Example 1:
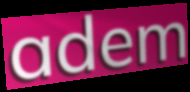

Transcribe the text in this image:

adem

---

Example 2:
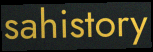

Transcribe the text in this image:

sahistory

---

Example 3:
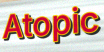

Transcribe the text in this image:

Atopic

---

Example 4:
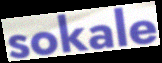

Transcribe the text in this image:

sokale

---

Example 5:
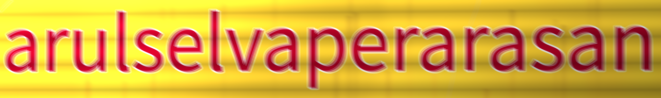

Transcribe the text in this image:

arulselvaperarasan